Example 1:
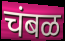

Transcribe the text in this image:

चंबळ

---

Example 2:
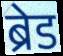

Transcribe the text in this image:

ब्रेड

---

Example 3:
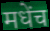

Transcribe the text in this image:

मधेंच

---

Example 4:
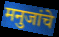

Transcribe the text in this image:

मनुजांचे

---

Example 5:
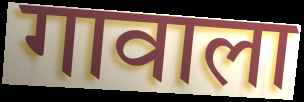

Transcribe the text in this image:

गावाला